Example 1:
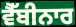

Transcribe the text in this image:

ਵੈੱਬੀਨਾਰ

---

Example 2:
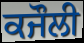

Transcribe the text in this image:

ਕਜੌਲੀ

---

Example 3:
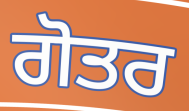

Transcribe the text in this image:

ਗੋਤਰ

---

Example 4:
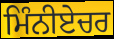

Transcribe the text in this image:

ਮਿੰਨੀਏਚਰ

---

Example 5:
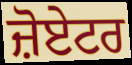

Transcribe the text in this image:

ਜ਼ੋਏਟਰ